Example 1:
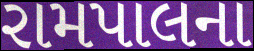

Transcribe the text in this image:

રામપાલના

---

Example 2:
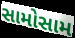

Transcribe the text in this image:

સામોસામ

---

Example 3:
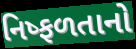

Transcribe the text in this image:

નિષ્ફળતાનો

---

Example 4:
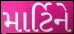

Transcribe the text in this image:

માર્ટિને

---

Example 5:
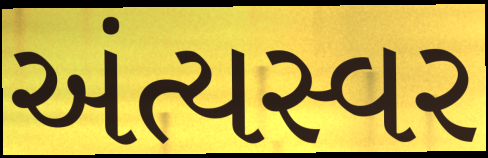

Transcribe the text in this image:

અંત્યસ્વર